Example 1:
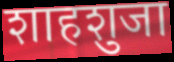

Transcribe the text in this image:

शाहशुजा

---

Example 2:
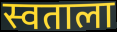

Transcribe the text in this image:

स्वताला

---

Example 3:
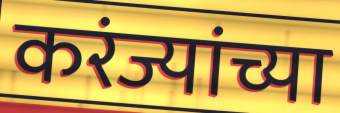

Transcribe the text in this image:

करंज्यांच्या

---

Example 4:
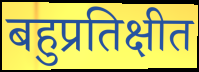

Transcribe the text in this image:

बहुप्रतिक्षीत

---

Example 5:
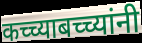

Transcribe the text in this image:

कच्च्याबच्च्यांनी